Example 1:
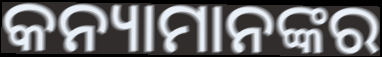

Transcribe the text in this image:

କନ୍ୟାମାନଙ୍କର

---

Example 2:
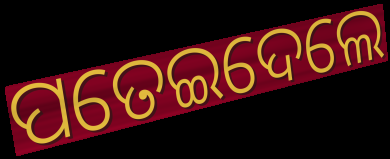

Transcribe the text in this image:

ପତେଇଦେଲେ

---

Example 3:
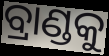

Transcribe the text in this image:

ବ୍ରାଣ୍ଡକୁ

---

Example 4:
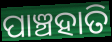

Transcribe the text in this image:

ପାଞ୍ଚହାତି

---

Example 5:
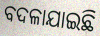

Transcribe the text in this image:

ବଦଳାଯାଇଛି